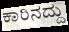
ಕಾರಿನದ್ದು